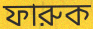
ফারুক